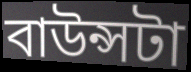
বাউন্সটা